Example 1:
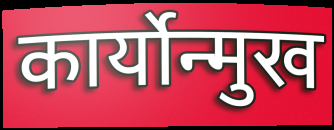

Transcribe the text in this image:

कार्योन्मुख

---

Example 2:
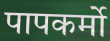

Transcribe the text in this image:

पापकर्मो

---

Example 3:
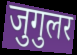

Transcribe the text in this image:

जुगुलर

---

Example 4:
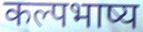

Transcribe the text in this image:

कल्पभाष्य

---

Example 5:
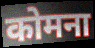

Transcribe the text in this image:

कोमना